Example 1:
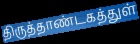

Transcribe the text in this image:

திருத்தாண்டகத்துள்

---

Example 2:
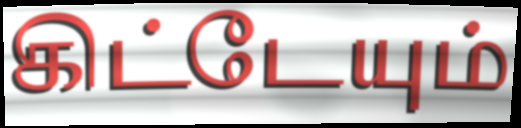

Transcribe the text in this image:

கிட்டேயும்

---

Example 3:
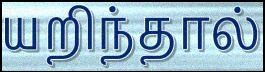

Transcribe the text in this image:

யறிந்தால்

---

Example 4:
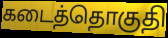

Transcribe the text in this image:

கடைத்தொகுதி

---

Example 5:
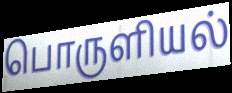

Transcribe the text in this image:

பொருளியல்